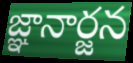
జ్ఞానార్జన